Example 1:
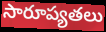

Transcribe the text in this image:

సారూప్యతలు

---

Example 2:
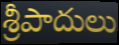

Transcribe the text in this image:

శ్రీపాదులు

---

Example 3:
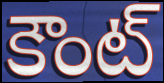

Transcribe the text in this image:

కౌంట్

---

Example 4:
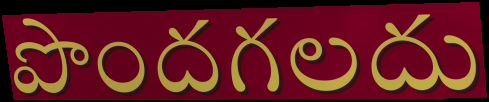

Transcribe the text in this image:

పొందగలదు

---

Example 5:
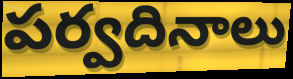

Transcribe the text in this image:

పర్వదినాలు